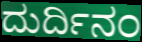
ದುರ್ದಿನಂ